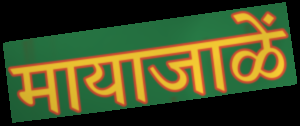
मायाजाळें